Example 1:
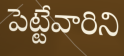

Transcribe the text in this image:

పెట్టేవారిని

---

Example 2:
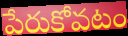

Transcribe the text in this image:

పేరుకోవటం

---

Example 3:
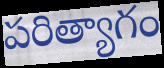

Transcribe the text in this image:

పరిత్యాగం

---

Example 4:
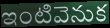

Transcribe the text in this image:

ఇంటివెనుక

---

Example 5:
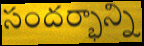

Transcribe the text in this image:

సందర్భాన్ని